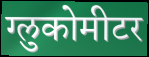
ग्लुकोमीटर